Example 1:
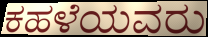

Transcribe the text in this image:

ಕಹಳೆಯವರು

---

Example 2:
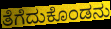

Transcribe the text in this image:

ತೆಗೆದುಕೊಂಡನು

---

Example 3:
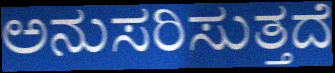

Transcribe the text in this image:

ಅನುಸರಿಸುತ್ತದೆ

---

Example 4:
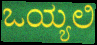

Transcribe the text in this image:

ಒಯ್ಯಲಿ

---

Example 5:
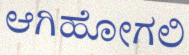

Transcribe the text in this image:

ಆಗಿಹೋಗಲಿ